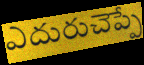
ఎదురుచెప్పే